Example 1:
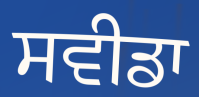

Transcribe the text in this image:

ਸਵੀਡਾ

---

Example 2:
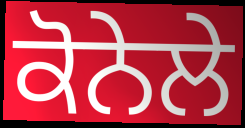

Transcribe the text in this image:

ਕੋਨੇਲੇ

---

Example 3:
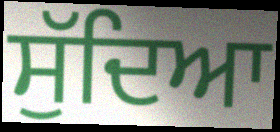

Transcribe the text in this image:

ਸੁੱਦਿਆ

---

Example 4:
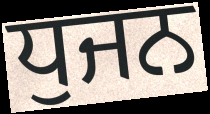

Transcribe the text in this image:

ਧੁਜਨ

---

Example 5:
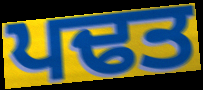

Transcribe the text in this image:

ਪਢਤ